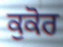
ਕੁਕੋਰ